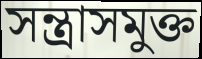
সন্ত্রাসমুক্ত